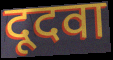
दूदवा